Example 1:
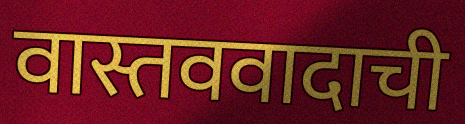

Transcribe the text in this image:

वास्तववादाची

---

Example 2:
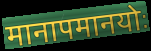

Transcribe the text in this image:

मानापमानयोः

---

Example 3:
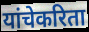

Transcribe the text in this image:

यांचेकरिता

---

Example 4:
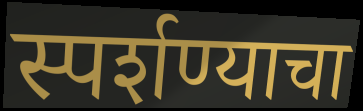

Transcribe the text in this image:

स्पर्शण्याचा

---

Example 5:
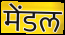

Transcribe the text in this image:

मेंडल